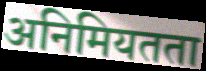
अनिमियतता